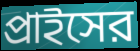
প্রাইসের